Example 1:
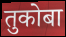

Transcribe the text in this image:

तुकोबा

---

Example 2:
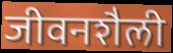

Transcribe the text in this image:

जीवनशैली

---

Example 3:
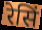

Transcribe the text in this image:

रेसिं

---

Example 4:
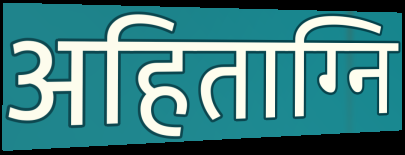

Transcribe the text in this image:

अहिताग्नि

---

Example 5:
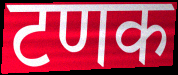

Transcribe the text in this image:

टणक